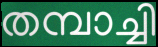
തമ്പാച്ചി